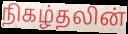
நிகழ்தலின்